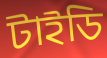
টাইডি